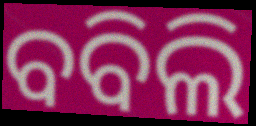
ବବିଲି